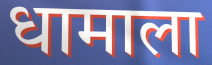
धामाला